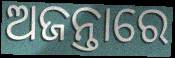
ଅଜନ୍ତାରେ